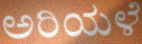
ಅರಿಯಳೆ